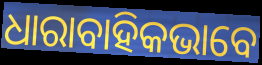
ଧାରାବାହିକଭାବେ